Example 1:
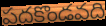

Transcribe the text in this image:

పదకొండవది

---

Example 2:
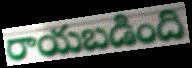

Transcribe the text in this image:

రాయబడింది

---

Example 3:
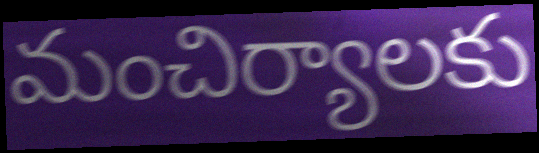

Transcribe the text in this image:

మంచిర్యాలకు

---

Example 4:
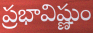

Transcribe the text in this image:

ప్రభావిష్ణుం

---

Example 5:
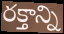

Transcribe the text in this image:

రక్తాన్ని